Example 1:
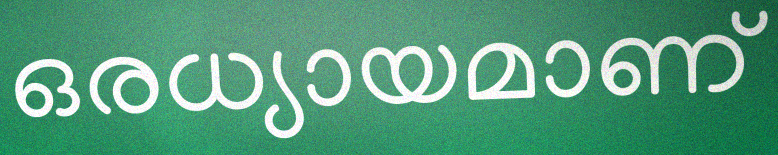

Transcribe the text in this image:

ഒരധ്യായമാണ്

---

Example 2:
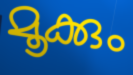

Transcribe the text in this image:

മൂക്കും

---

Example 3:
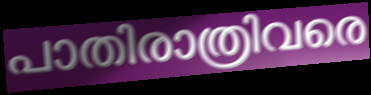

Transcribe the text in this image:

പാതിരാത്രിവരെ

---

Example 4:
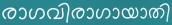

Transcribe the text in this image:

രാഗവിരാഗായാതി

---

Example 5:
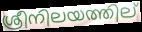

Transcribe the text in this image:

ശ്രീനിലയത്തില്